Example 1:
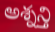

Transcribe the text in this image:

అశ్నన్తి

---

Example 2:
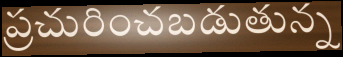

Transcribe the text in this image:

ప్రచురించబడుతున్న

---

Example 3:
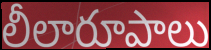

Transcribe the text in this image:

లీలారూపాలు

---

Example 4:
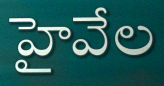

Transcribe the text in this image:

హైవేల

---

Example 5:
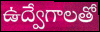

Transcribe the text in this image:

ఉద్వేగాలతో